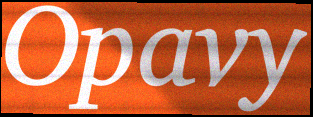
Opavy